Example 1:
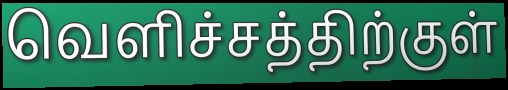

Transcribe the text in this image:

வெளிச்சத்திற்குள்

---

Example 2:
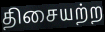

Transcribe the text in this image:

திசையற்ற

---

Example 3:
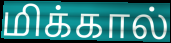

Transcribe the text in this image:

மிக்கால்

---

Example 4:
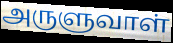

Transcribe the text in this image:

அருளுவாள்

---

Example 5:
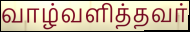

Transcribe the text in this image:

வாழ்வளித்தவர்